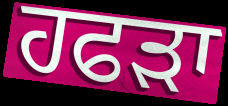
ਹਫੜਾ